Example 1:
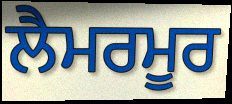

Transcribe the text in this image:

ਲੈਮਰਮੂਰ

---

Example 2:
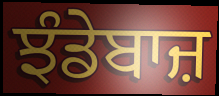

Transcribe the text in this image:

ਝੰਡੇਬਾਜ਼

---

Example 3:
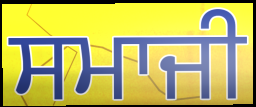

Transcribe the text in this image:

ਸਮਾਜੀ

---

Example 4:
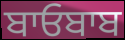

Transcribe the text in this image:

ਬਾਓਬਾਬ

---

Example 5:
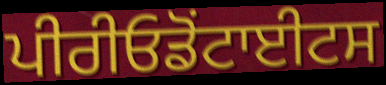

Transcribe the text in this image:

ਪੀਰੀਓਡੋਂਟਾਈਟਸ